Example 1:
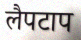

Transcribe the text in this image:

लैपटाप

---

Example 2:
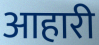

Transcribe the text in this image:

आहारी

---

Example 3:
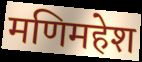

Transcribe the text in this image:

मणिमहेश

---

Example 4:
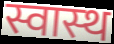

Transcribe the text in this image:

स्‍वास्‍थ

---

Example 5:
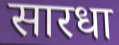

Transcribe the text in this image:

सारधा